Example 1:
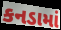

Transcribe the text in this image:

કનડામાં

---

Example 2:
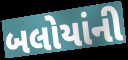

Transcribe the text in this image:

બલોયાંની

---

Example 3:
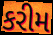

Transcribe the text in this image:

કરીમ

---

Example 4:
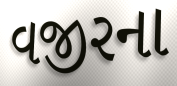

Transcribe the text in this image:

વજીરના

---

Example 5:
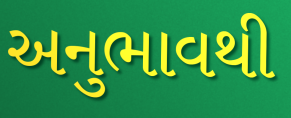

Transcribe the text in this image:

અનુભાવથી